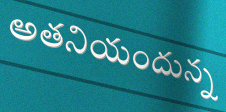
అతనియందున్న